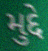
મુદ્દે